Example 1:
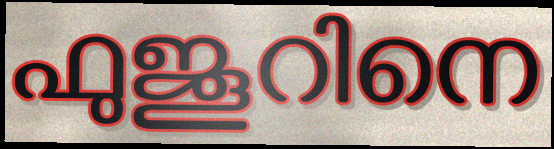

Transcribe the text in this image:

ഫുജൂറിനെ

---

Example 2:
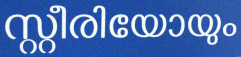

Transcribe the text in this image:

സ്റ്റീരിയോയും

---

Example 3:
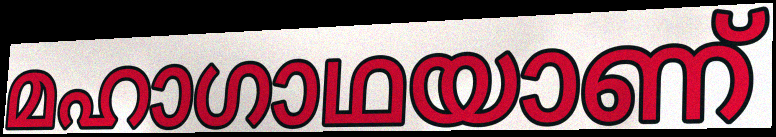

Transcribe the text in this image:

മഹാഗാഥയാണ്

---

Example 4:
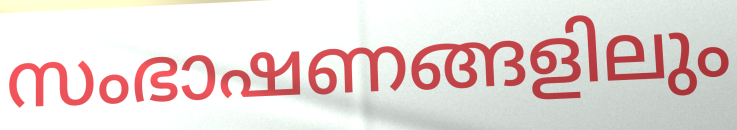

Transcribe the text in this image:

സംഭാഷണങ്ങളിലും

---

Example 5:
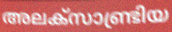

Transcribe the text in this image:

അലക്സാണ്ട്രിയ